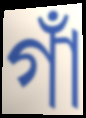
গাঁ